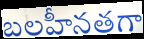
బలహీనతగా